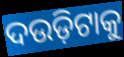
ଦଉଡ଼ିଟାକୁ